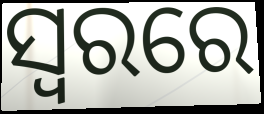
ସ୍ୱରରେ